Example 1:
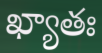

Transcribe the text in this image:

ఖ్యాతః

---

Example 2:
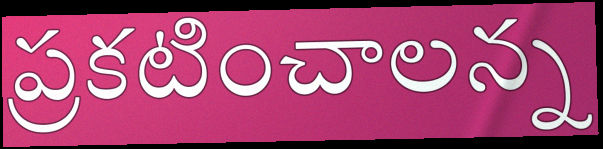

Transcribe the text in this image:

ప్రకటించాలన్న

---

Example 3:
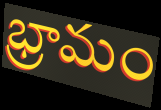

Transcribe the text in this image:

భ్రామం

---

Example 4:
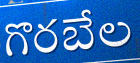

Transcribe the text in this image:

గొరబేల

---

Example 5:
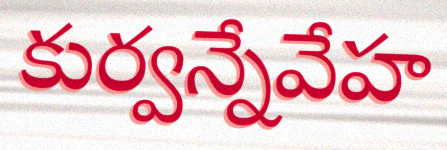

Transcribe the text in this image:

కుర్వన్నేవేహ